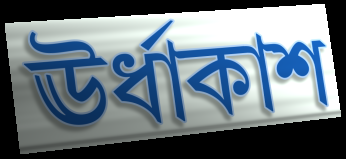
ঊর্ধাকাশ